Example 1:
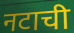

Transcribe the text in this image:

नटाची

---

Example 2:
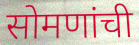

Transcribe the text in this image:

सोमणांची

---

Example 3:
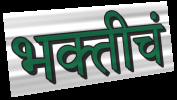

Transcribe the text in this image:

भक्तीचं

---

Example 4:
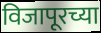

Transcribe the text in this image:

विजापूरच्या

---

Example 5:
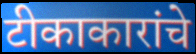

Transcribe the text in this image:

टीकाकारांचे